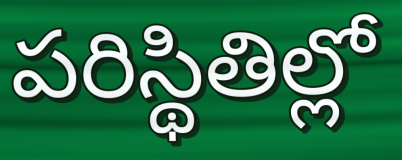
పరిస్థితిల్లో